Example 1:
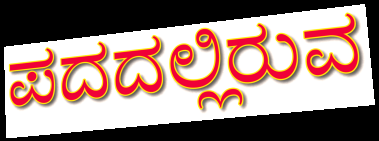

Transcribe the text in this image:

ಪದದಲ್ಲಿರುವ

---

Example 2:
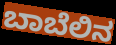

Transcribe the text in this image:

ಬಾಬೆಲಿನ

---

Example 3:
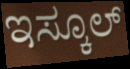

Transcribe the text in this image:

ಇಸ್ಕೂಲ್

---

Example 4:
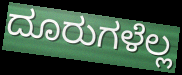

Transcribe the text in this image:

ದೂರುಗಳೆಲ್ಲ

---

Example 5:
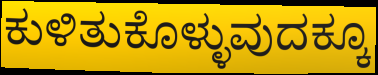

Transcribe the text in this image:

ಕುಳಿತುಕೊಳ್ಳುವುದಕ್ಕೂ